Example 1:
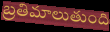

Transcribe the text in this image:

బ్రతిమాలుతుంది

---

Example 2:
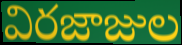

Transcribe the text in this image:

విరజాజుల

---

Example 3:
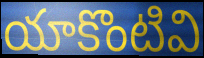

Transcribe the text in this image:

యాకొంటివి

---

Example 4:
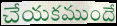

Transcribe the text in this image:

చేయకముందే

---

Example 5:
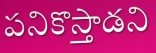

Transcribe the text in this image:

పనికొస్తాడని